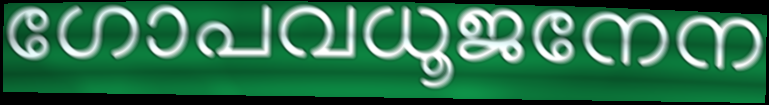
ഗോപവധൂജനേന